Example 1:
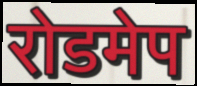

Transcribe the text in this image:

रोडमेप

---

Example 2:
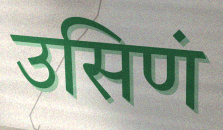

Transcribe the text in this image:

उसिणं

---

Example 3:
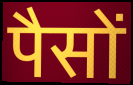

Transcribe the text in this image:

पैसों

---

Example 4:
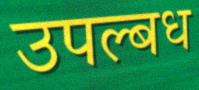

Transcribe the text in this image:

उपल्‍बध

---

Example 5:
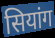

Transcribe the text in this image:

सियांग